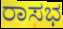
ರಾಸಭ